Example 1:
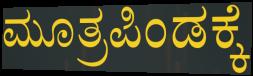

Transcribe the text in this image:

ಮೂತ್ರಪಿಂಡಕ್ಕೆ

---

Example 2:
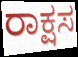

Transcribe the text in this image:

ರಾಕ್ಷಸ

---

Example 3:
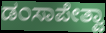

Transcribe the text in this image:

ಡಂಸಾಪೇತ್ವಾ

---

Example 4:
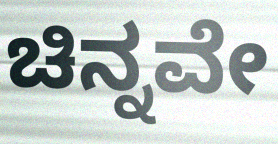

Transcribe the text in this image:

ಚಿನ್ನವೇ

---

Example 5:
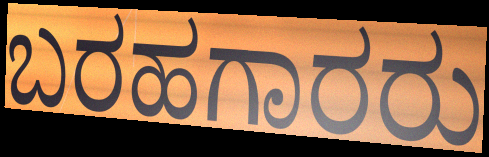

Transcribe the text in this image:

ಬರಹಗಾರರು